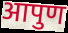
आपुण